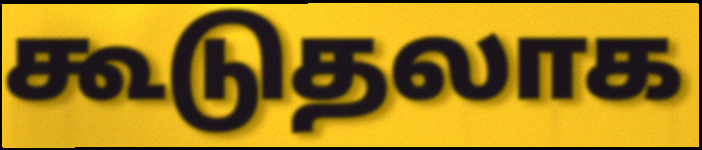
கூடுதலாக